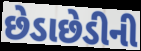
છેડાછેડીની